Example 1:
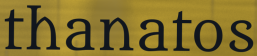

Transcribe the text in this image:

thanatos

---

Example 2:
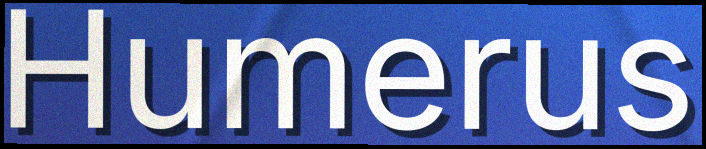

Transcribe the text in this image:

Humerus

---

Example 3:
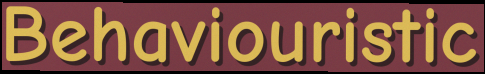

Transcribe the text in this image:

Behaviouristic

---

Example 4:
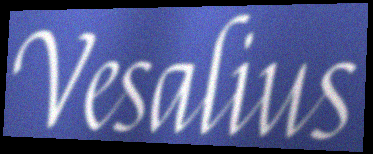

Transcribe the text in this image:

Vesalius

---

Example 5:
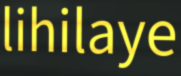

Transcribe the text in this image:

lihilaye